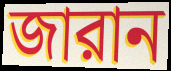
জারান